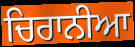
ਚਿਰਾਨੀਆ